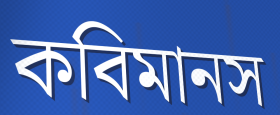
কবিমানস